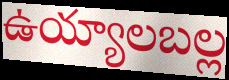
ఉయ్యాలబల్ల